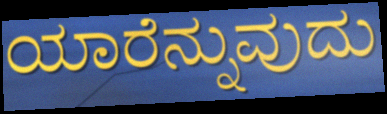
ಯಾರೆನ್ನುವುದು